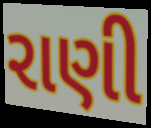
રાણી